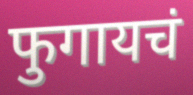
फुगायचं